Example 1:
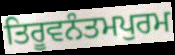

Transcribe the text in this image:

ਤਿਰੂਵਨੰਤਮਪੁਰਮ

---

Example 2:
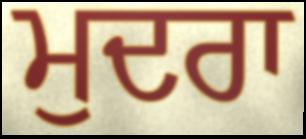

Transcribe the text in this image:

ਮੁਦਰਾ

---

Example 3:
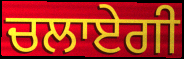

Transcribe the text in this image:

ਚਲਾਏਗੀ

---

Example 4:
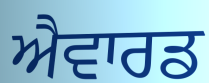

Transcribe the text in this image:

ਐਵਾਰਡ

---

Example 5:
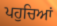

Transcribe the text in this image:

ਪਹੁਚਿਆਂ